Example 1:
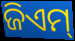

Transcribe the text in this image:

ଜିଏମ୍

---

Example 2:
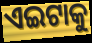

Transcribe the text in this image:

ଏଇଟାକୁ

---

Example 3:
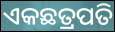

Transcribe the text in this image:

ଏକଛତ୍ରପତି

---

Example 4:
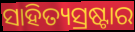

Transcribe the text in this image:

ସାହିତ୍ୟସ୍ରଷ୍ଟାର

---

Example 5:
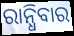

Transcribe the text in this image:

ରାନ୍ଧିବାର